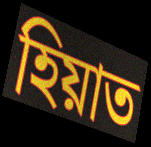
হিয়াত